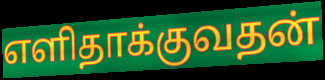
எளிதாக்குவதன்